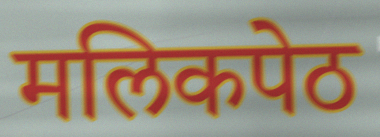
मलिकपेठ